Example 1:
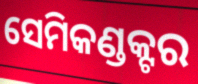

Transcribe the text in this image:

ସେମିକଣ୍ଡକ୍ଟର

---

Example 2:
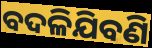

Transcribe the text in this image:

ବଦଳିଯିବଣି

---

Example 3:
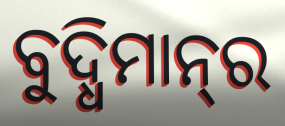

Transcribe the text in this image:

ବୁଦ୍ଧିମାନ୍‍ର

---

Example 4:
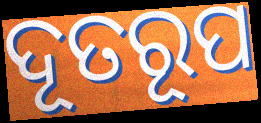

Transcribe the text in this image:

ଦୂତରୂପ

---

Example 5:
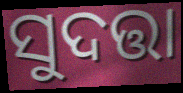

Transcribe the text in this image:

ସୁଦତ୍ତା